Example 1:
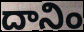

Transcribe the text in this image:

దానిం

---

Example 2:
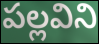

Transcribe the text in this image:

పల్లవిని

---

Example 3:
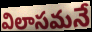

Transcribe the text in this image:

విలాసమనే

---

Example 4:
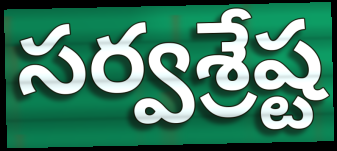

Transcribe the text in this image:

సర్వశ్రేష్ట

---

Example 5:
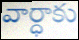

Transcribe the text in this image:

వార్ధాకు